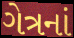
ગેત્રનાં